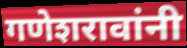
गणेशरावांनी